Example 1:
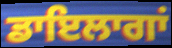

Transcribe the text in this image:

ਡਾਇਲਾਗਾਂ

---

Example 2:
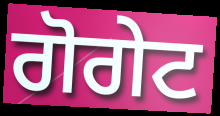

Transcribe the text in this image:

ਗੋਗੇਟ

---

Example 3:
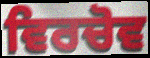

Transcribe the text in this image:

ਵਿਰਚੋਵ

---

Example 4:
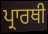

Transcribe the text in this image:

ਪ੍ਰਾਰਥੀ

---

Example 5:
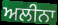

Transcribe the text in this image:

ਅਲੀਨਾ